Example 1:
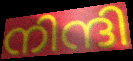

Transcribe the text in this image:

നിന്ദി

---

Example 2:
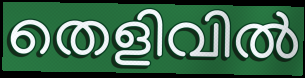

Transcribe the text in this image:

തെളിവിൽ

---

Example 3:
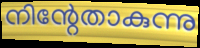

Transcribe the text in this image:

നിന്റേതാകുന്നു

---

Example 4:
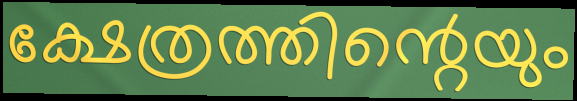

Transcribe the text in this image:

ക്ഷേത്രത്തിന്റെയും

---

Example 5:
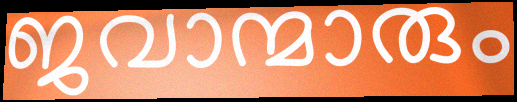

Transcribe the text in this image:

ജവാന്മാരും